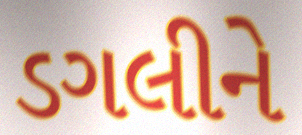
ડગલીને